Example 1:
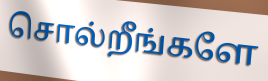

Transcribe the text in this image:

சொல்றீங்களே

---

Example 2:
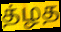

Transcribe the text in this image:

த்ழத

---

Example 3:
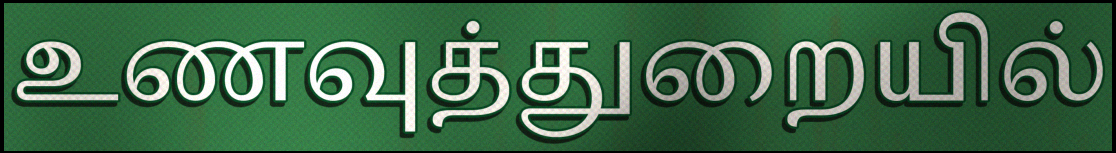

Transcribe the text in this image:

உணவுத்துறையில்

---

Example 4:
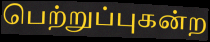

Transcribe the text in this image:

பெற்றுப்புகன்ற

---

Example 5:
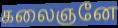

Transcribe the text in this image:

கலைஞனே